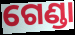
ଗେଣ୍ଡା